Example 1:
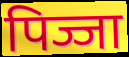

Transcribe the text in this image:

पिज्जा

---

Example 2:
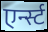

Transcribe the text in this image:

एर्न्स्ट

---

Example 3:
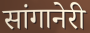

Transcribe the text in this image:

सांगानेरी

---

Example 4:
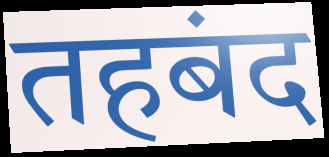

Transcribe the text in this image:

तहबंद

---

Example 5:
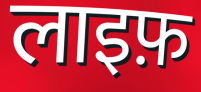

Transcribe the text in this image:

लाइफ़